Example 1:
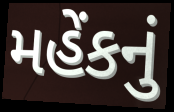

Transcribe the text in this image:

મહેંકનું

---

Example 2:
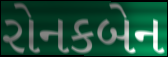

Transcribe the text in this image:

રોનકબેન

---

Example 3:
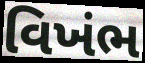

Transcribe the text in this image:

વિખંભ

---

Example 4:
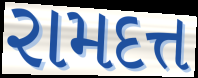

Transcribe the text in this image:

રામદત્ત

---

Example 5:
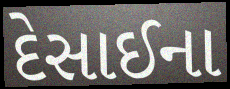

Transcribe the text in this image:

દેસાઈના